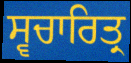
ਸ੍ਵਚਾਰਿਤ੍ਰ